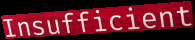
Insufficient